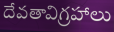
దేవతావిగ్రహాలు